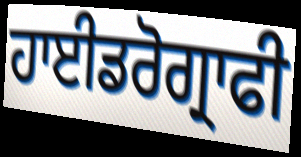
ਹਾਈਡਰੋਗ੍ਰਾਫੀ